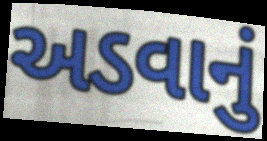
અડવાનું